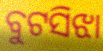
ବୁଟସିଝା